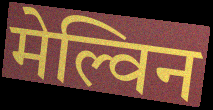
मेल्विन